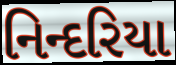
નિન્દરિયા